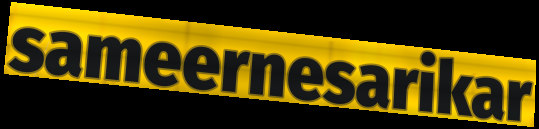
sameernesarikar